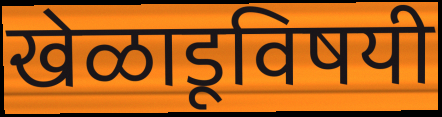
खेळाडूविषयी